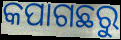
କପାଗଛରୁ